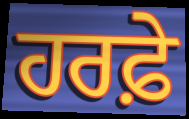
ਹਰਫ਼ੇ